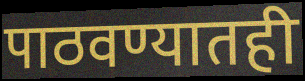
पाठवण्यातही